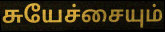
சுயேச்சையும்